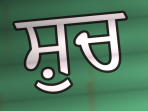
ਸ਼ੁਚ